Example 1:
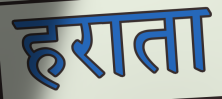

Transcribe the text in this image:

हराता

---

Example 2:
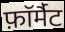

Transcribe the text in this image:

फ़ॉर्मैट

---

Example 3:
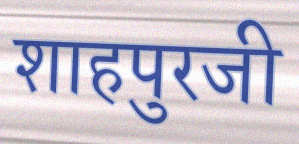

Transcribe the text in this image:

शाहपुरजी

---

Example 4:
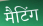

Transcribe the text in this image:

मैटिंग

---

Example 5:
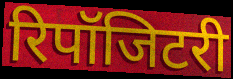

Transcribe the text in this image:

रिपॉजिटरी